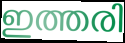
ഇത്തരി